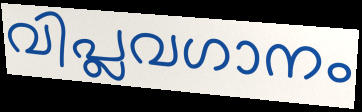
വിപ്ലവഗാനം